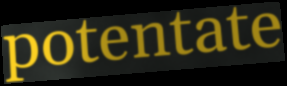
potentate